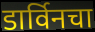
डार्विनचा